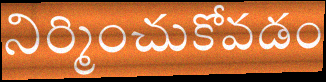
నిర్మించుకోవడం